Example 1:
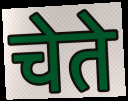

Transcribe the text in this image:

चेते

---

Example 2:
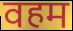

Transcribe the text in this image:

वहम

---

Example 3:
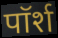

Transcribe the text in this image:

पॉर्श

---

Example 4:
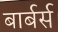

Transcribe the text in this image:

बार्बर्स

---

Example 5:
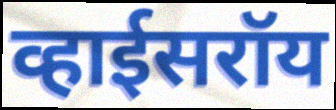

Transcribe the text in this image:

व्हाईसरॉय